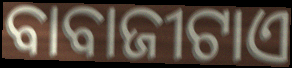
ବାବାଜୀଟାଏ